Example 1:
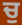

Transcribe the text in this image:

ਚੁ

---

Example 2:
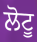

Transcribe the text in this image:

ਲੋਟੂ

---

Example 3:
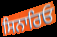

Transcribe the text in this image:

ਸਿਨਾਰਿਓ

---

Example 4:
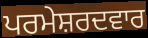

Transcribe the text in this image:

ਪਰਮੇਸ਼ਰਦਵਾਰ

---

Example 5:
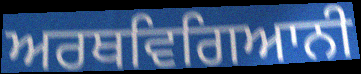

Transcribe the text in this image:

ਅਰਥਵਿਗਿਆਨੀ